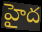
హైద